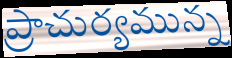
ప్రాచుర్యమున్న